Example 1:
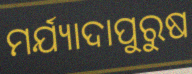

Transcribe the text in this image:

ମର୍ଯ୍ୟାଦାପୁରୁଷ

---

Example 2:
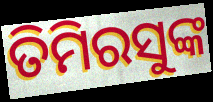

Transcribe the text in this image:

ତିମିରସୁଙ୍କ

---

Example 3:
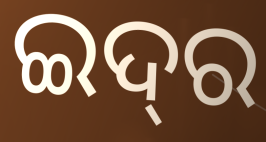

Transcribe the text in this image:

ଇଦ୍‍ର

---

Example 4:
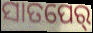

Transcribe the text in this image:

ସାତପେର୍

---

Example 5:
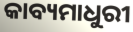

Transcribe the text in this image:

କାବ୍ୟମାଧୁରୀ